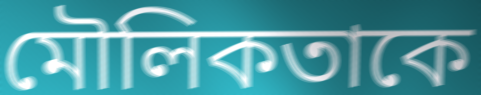
মৌলিকতাকে